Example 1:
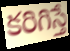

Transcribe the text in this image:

కరిగిస్తే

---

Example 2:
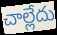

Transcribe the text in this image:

చాల్లేదు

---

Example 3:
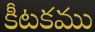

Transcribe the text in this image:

కీటకము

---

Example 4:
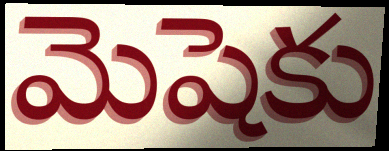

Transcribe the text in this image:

మెషెకు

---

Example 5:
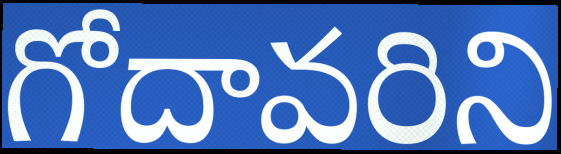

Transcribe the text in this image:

గోదావరిని